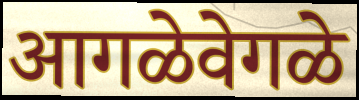
आगळेवेगळे